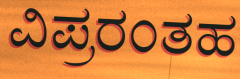
ವಿಪ್ರರಂತಹ